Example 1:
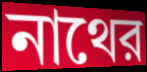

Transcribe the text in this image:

নাথের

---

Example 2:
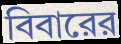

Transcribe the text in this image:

বিবারের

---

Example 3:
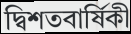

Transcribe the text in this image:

দ্বিশতবার্ষিকী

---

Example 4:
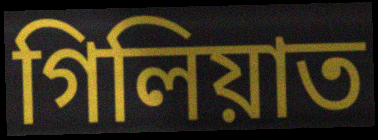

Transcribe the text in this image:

গিলিয়াত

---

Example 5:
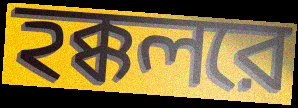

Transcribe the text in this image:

হক্কলরে